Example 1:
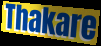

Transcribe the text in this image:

Thakare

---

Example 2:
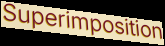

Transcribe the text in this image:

Superimposition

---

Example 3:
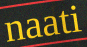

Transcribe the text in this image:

naati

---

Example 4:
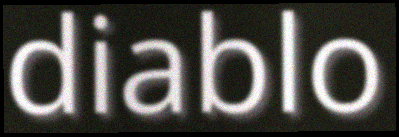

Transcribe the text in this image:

diablo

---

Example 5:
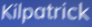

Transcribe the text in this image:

Kilpatrick